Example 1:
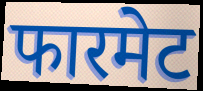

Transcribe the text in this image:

फारमेट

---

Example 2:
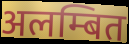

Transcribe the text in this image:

अलम्बित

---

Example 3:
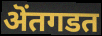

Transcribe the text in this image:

ऄंतगडत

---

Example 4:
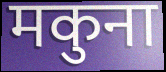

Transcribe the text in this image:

मकुना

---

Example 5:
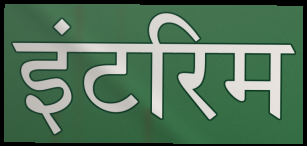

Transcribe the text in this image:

इंटरिम